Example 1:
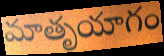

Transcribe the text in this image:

మాతృయాగం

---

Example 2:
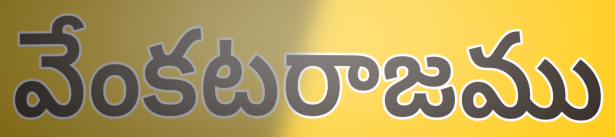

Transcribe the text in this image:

వేంకటరాజము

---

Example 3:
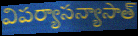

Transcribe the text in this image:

విపర్యాసన్యాసాత్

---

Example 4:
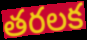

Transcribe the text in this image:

తరలక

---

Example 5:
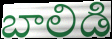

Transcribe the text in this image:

బాలిడి